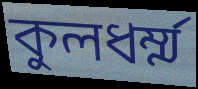
কুলধর্ম্ম